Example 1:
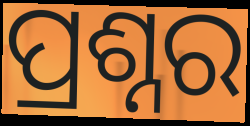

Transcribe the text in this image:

ପ୍ରଶ୍ନର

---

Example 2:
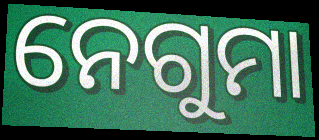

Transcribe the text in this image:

ନେଗୁମା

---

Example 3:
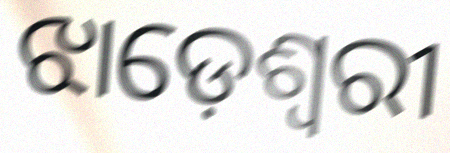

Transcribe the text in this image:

ଝାଡ଼େଶ୍ୱରୀ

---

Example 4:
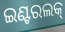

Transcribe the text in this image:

ଇଣ୍ଟରଲକ୍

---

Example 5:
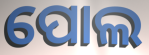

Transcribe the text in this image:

ପୋଲ